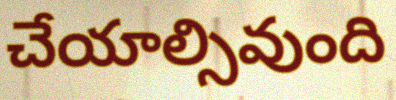
చేయాల్సివుంది